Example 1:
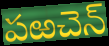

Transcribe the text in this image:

పఱచెన్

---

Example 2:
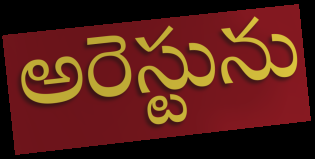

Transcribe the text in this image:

అరెస్టును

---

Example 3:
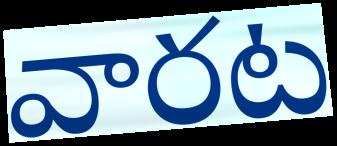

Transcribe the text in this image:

వారట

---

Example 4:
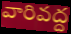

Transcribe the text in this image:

వారివద్ద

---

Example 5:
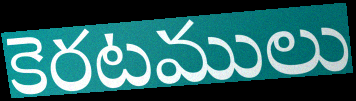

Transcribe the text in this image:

కెరటములు